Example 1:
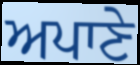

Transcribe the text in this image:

ਅਪਾਣੇ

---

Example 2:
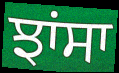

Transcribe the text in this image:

ਝਾਂਸਾ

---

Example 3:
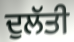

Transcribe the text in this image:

ਦੁਲੱਤੀ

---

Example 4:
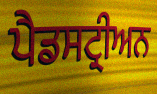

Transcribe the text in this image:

ਪੈਡਸਟ੍ਰੀਅਨ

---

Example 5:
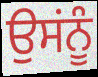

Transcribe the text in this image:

ਉਸਂਨੂੰ